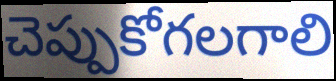
చెప్పుకోగలగాలి